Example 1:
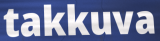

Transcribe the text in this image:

takkuva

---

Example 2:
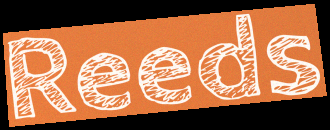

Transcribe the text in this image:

Reeds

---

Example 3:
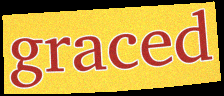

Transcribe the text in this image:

graced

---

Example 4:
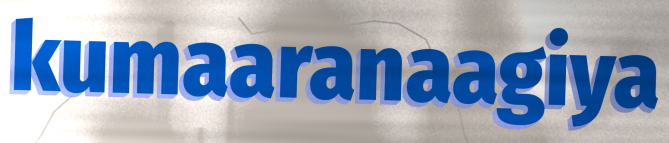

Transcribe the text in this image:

kumaaranaagiya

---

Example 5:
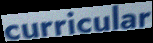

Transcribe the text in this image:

curricular